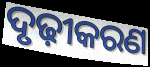
ଦୃଢ଼ୀକରଣ